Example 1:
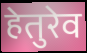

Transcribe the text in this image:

हेतुरेव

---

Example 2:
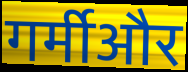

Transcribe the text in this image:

गर्मीऔर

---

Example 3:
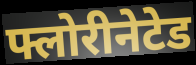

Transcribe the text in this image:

फ्लोरीनेटेड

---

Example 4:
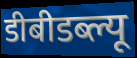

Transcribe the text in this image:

डीबीडब्ल्यू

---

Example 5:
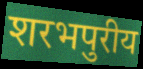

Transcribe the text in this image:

शरभपुरीय